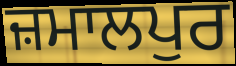
ਜ਼ਮਾਲਪੁਰ